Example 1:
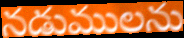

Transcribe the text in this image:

నడుములను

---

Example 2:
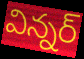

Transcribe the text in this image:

విన్నర్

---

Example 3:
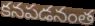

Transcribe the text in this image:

కనపడనంత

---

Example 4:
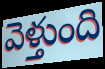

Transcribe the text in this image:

వెళ్తుంది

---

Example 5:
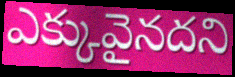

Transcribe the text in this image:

ఎక్కువైనదని